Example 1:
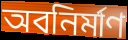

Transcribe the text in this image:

অবনির্মাণ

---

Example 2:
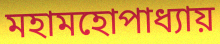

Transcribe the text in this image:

মহামহোপাধ্যায়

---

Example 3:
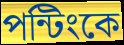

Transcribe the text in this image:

পন্টিংকে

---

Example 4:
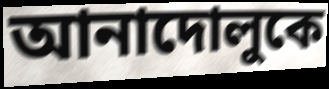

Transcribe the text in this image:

আনাদোলুকে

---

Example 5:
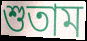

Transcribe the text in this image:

শুতাম